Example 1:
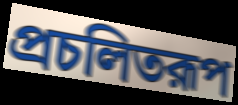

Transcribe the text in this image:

প্রচলিতরূপ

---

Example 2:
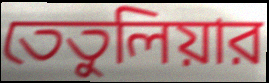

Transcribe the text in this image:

তেতুলিয়ার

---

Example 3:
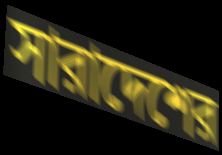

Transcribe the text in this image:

সারাদেশের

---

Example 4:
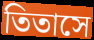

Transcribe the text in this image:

তিতাসে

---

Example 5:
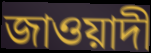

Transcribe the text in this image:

জাওয়াদী